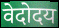
वेदोदय